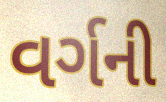
વર્ગની